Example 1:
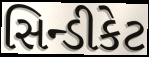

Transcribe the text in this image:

સિન્ડીકેટ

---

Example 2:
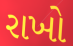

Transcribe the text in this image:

રાખો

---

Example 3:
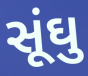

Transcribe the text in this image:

સૂંઘુ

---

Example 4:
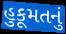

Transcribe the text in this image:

હુકૂમતનું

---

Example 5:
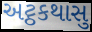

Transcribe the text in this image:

અટ્ઠકથાસુ